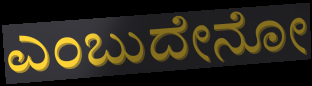
ಎಂಬುದೇನೋ